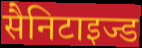
सैनिटाइज्ड